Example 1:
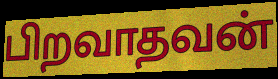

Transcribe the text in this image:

பிறவாதவன்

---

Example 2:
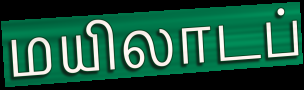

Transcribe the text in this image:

மயிலாடப்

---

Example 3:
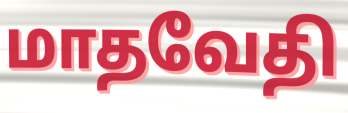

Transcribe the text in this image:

மாதவேதி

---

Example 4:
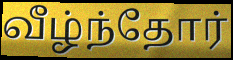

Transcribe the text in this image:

வீழ்ந்தோர்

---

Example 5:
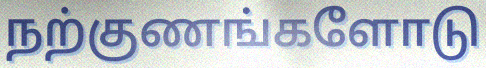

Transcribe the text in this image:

நற்குணங்களோடு